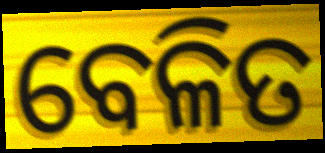
ବେଳିତ